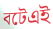
বটেএই